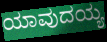
ಯಾವುದಯ್ಯ